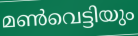
മൺവെട്ടിയും